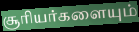
சூரியர்களையும்